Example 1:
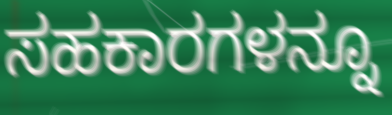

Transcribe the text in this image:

ಸಹಕಾರಗಳನ್ನೂ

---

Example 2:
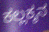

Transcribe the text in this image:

ಕಲ್ಲಕ್ಕನ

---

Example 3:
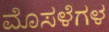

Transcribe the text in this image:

ಮೊಸಳೆಗಳ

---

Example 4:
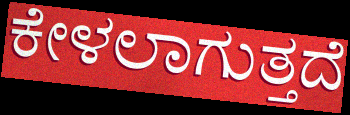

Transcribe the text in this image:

ಕೇಳಲಾಗುತ್ತದೆ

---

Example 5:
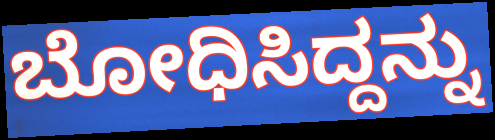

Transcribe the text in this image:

ಬೋಧಿಸಿದ್ದನ್ನು